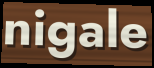
nigale